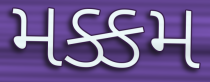
મક્કમ